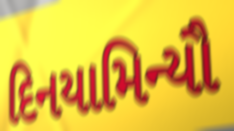
દિનયામિન્યૌ